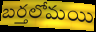
బర్తలోమయి